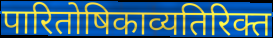
पारितोषिकाव्यतिरिक्त